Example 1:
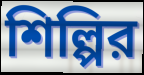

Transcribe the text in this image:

শিল্পির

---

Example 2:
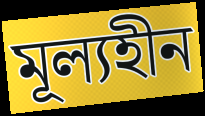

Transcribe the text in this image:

মূল্যহীন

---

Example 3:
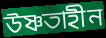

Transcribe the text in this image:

উষ্ণতাহীন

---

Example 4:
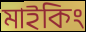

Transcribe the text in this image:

মাইকিং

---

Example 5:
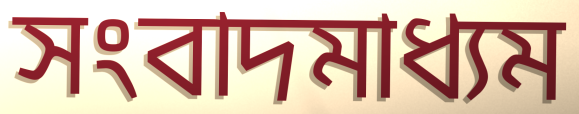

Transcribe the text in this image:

সংবাদমাধ্যম